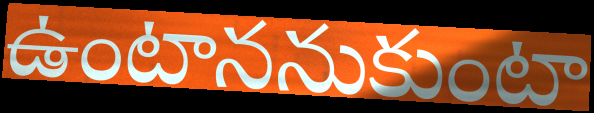
ఉంటాననుకుంటా